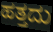
ಹತ್ತದು